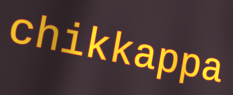
chikkappa